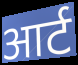
आर्ट